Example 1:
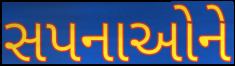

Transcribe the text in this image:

સપનાઓને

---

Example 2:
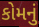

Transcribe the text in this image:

કોમનું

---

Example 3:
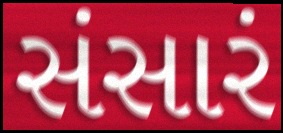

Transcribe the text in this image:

સંસારં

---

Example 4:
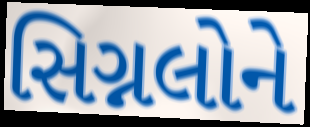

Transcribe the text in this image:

સિગ્નલોને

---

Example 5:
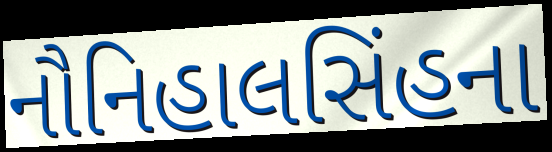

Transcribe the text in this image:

નૌનિહાલસિંહના